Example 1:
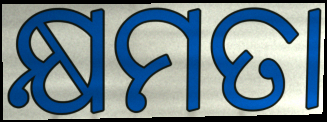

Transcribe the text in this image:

କ୍ଷମତା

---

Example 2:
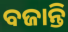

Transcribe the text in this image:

ବଜାନ୍ତି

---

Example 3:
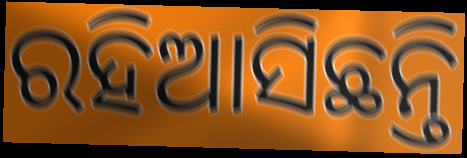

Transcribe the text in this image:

ରହିଆସିଛନ୍ତି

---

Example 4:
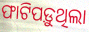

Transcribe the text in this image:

ଫାଟିପଡ଼ୁଥିଲା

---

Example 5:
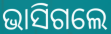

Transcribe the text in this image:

ଭାସିଗଲେ